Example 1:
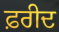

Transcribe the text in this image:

ਫ਼ਰੀਦ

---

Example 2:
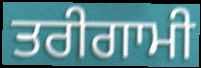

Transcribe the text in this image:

ਤਰੀਗਾਮੀ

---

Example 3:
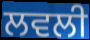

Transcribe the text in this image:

ਲਵਲੀ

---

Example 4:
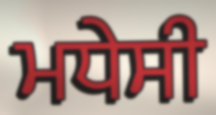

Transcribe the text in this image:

ਮਧੇਸੀ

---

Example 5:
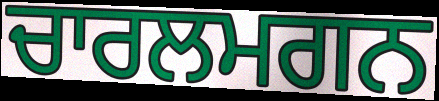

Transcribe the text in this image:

ਚਾਰਲਮਗਨ